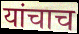
यांचाच